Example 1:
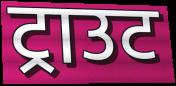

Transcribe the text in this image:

ट्राउट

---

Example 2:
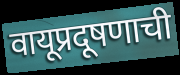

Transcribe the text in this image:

वायूप्रदूषणाची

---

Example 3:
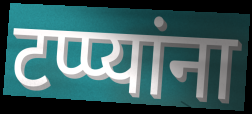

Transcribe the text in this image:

टप्प्यांना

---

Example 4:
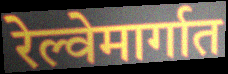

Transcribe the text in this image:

रेल्वेमार्गात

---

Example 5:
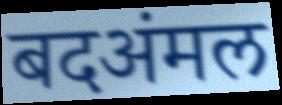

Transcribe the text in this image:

बदअंमल